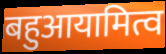
बहुआयामित्व